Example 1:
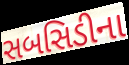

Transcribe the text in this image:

સબસિડીના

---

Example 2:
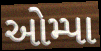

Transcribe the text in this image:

ઓમ્પા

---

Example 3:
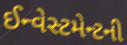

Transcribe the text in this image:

ઈન્વેસ્ટમેન્ટની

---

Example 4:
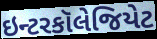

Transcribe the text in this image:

ઇન્ટરકૉલેજિયેટ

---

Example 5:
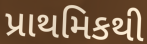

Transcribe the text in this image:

પ્રાથમિકથી